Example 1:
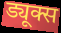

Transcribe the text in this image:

ड्यूक्स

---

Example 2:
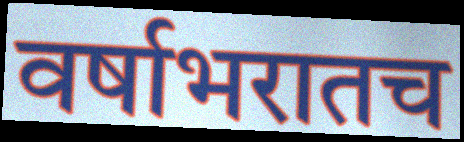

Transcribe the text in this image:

वर्षाभरातच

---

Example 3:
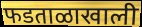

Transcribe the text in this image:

फडताळाखाली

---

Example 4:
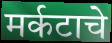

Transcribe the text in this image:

मर्कटाचे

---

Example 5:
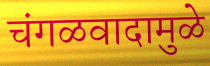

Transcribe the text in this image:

चंगळवादामुळे